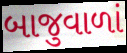
બાજુવાળાં